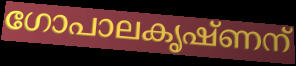
ഗോപാലകൃഷ്ണന്